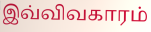
இவ்விவகாரம்